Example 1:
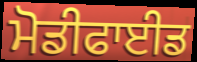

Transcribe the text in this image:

ਮੋਡੀਫਾਈਡ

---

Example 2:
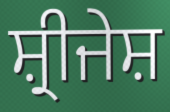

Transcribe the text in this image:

ਸ਼੍ਰੀਜੇਸ਼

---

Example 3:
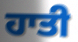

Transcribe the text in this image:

ਹਾਤੀ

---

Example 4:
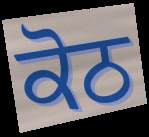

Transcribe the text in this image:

ਕੋਠ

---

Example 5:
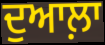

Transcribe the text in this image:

ਦੁਆਲ਼ਾ